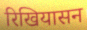
रिखियासन